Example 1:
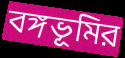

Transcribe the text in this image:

বঙ্গভূমির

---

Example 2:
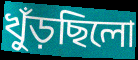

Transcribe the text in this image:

খুঁড়ছিলো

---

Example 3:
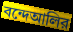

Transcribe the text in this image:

বন্দেআলির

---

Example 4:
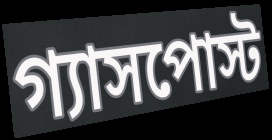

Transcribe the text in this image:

গ্যাসপোস্ট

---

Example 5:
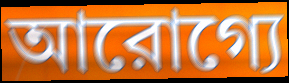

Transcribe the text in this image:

আরোগ্যে